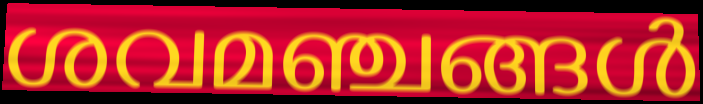
ശവമഞ്ചങ്ങൾ